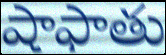
షాఫాతు